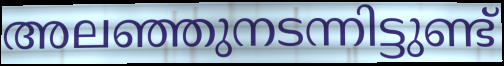
അലഞ്ഞുനടന്നിട്ടുണ്ട്